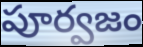
పూర్వజం